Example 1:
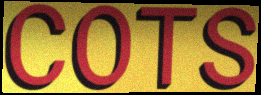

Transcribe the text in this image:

COTS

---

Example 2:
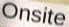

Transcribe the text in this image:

Onsite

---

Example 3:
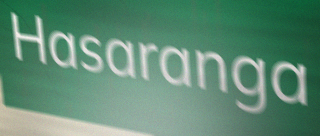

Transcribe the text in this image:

Hasaranga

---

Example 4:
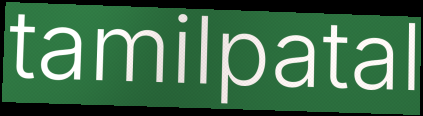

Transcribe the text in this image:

tamilpatal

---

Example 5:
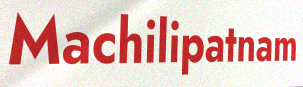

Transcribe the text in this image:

Machilipatnam